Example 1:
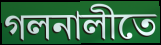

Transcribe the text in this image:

গলনালীতে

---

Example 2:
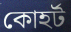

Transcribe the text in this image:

কোহর্ট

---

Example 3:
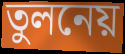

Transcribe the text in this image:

তুলনেয়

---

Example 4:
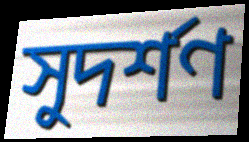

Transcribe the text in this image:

সুদর্শণ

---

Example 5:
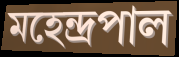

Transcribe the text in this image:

মহেন্দ্রপাল